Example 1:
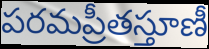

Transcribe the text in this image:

పరమప్రీతస్తూణీ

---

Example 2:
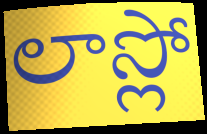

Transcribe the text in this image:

లాస్లో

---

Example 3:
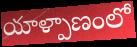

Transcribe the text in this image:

యాళ్పాణంలో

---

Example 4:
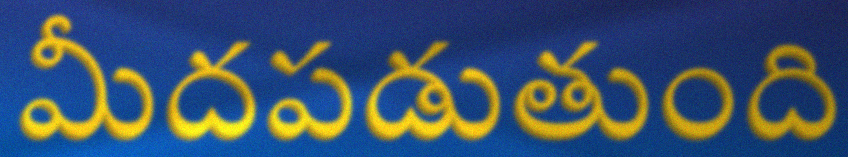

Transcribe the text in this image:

మీదపడుతుంది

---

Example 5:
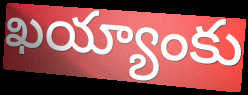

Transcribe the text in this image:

ఖయ్యాంకు